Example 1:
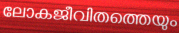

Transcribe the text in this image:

ലോകജീവിതത്തെയും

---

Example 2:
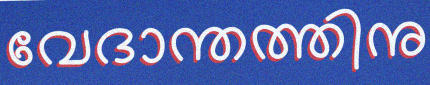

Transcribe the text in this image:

വേദാന്തത്തിനു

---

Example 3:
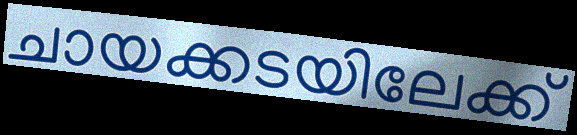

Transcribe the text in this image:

ചായക്കടയിലേക്ക്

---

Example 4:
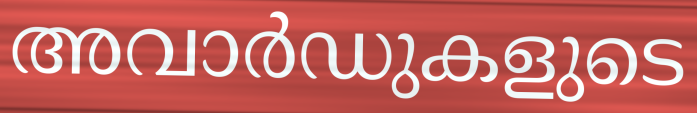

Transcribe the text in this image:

അവാർഡുകളുടെ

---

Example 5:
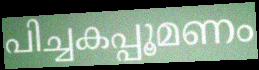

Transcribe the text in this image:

പിച്ചകപ്പൂമണം